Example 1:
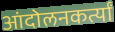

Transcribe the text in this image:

आंदोलनकर्त्यां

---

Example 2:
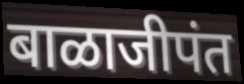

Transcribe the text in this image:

बाळाजीपंत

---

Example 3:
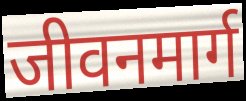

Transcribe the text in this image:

जीवनमार्ग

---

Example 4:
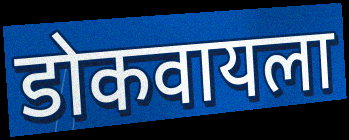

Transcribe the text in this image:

डोकवायला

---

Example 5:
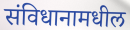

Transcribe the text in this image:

संविधानामधील